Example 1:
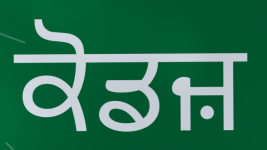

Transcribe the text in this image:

ਕੋਡਜ਼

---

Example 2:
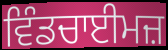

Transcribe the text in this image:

ਵਿੰਡਚਾਈਮਜ਼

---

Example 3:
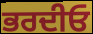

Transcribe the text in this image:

ਭਰਦੀਓ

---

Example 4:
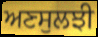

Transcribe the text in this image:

ਅਣਸੁਲਝੀ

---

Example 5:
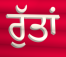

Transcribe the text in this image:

ਰੁੱਤਾਂ